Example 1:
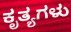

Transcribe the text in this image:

ಕೃತ್ಯಗಳು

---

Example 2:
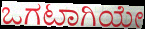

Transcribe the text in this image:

ಒಗಟಾಗಿಯೇ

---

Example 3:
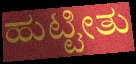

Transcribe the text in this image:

ಹುಟ್ಟೀತು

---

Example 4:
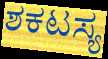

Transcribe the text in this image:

ಶಕಟಸ್ಯ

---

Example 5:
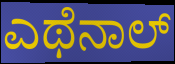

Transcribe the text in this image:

ಎಥೆನಾಲ್